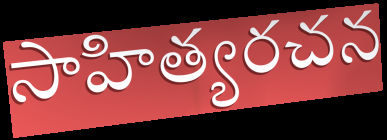
సాహిత్యరచన